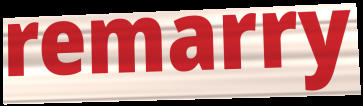
remarry